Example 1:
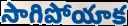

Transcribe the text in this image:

సాగిపోయాక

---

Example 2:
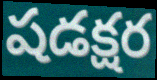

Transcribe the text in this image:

షడక్షర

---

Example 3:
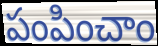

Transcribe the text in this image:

పంపించాం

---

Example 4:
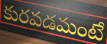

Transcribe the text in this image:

కురవడమంటే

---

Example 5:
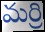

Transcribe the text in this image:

మర్రి